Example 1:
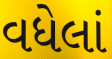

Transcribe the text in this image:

વધેલાં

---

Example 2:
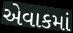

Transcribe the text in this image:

એવાકમાં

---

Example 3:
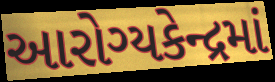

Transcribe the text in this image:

આરોગ્યકેન્દ્રમાં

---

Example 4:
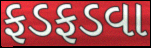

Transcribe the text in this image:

ફડફડવા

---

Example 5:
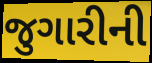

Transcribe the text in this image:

જુગારીની